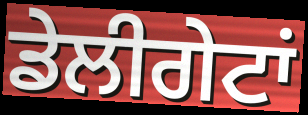
ਡੇਲੀਗੇਟਾਂ